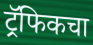
ट्रॅफिकचा